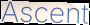
Ascent